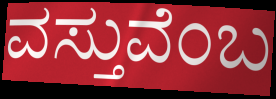
ವಸ್ತುವೆಂಬ